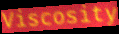
Viscosity